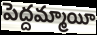
పెద్దమ్మాయీ